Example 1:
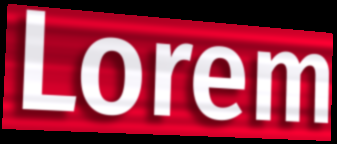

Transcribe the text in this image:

Lorem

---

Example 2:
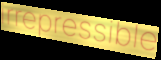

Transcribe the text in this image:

irrepressible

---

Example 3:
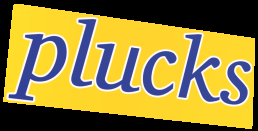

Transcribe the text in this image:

plucks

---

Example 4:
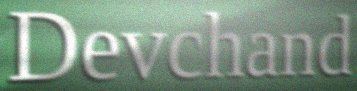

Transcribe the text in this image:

Devchand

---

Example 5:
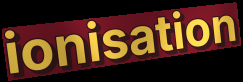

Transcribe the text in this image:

ionisation